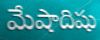
మేషాదిషు